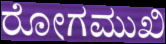
ರೋಗಮುಖಿ